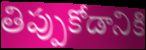
తిప్పుకోడానికి